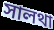
সালথা